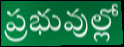
ప్రభువుల్లో